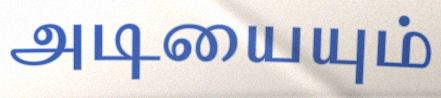
அடியையும்